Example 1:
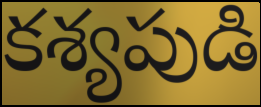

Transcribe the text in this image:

కశ్యపుడి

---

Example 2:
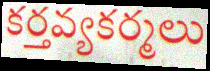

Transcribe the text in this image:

కర్తవ్యకర్మలు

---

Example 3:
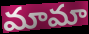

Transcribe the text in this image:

మామా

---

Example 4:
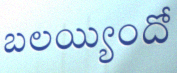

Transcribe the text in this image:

బలయ్యిందో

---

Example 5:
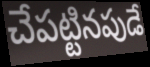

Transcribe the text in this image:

చేపట్టినపుడే